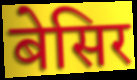
बेसिर